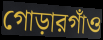
গোড়ারগাঁও